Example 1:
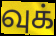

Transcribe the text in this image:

வுக்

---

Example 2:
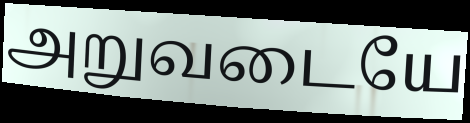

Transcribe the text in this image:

அறுவடையே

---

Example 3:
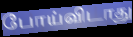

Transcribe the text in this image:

போய்விடாது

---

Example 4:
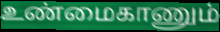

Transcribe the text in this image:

உண்மைகாணும்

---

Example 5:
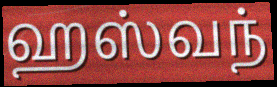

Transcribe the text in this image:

ஹஸ்வந்